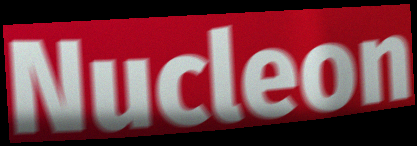
Nucleon